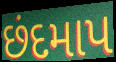
છંદમાપ